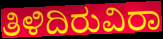
ತಿಳಿದಿರುವಿರಾ